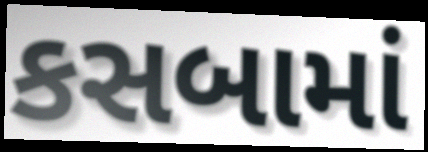
કસબામાં